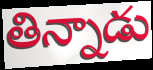
తిన్నాడు